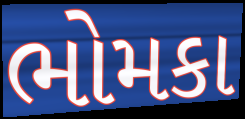
ભોમકા